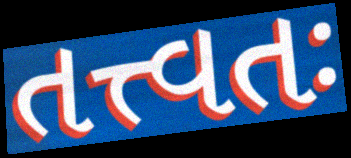
તત્ત્વતઃ